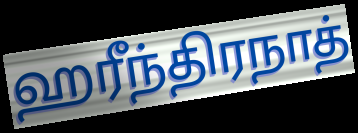
ஹரீந்திரநாத்